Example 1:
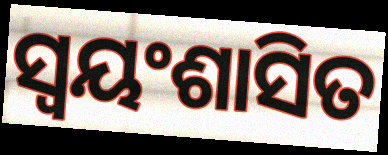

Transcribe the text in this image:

ସ୍ୱୟଂଶାସିତ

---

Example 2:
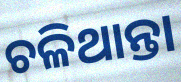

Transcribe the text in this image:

ଚଳିଥାନ୍ତା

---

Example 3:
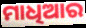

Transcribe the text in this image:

ମାଧିଆର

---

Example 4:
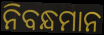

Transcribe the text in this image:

ନିବନ୍ଧମାନ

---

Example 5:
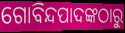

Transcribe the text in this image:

ଗୋବିନ୍ଦପାଦଙ୍କଠାରୁ